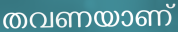
തവണയാണ്